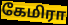
கேமிரா